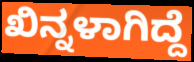
ಖಿನ್ನಳಾಗಿದ್ದೆ